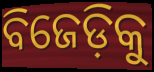
ବିଜେଡ଼ିକୁ